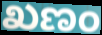
ಖಣಂ